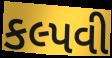
કલ્પવી